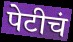
पेटीचं